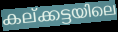
കല്ക്കട്ടയിലെ